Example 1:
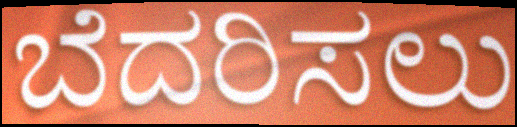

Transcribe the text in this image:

ಬೆದರಿಸಲು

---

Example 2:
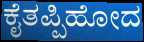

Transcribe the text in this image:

ಕೈತಪ್ಪಿಹೋದ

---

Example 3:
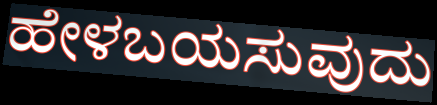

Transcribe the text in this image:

ಹೇಳಬಯಸುವುದು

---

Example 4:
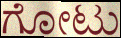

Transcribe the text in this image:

ಗೋಟು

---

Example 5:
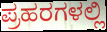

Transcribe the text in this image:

ಪ್ರಹರಗಳಲ್ಲಿ